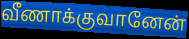
வீணாக்குவானேன்